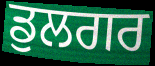
ਡੁਲਗਰ